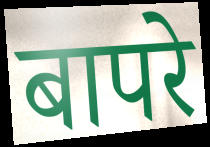
बापरे